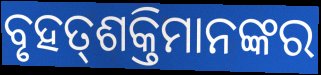
ବୃହତ୍‌ଶକ୍ତିମାନଙ୍କର